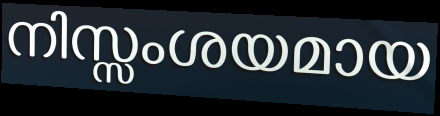
നിസ്സംശയമായ